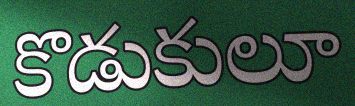
కొడుకులూ